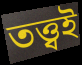
তত্ত্বই